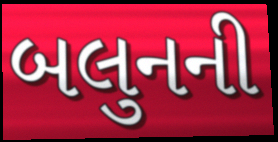
બલુનની